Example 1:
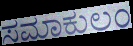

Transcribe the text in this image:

ಸಮಾಕುಲಂ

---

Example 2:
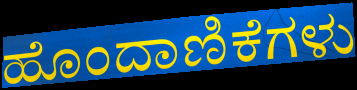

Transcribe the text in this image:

ಹೊಂದಾಣಿಕೆಗಳು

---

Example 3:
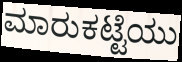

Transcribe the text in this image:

ಮಾರುಕಟ್ಟೆಯು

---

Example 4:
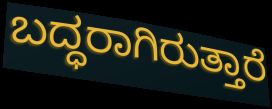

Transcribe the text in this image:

ಬದ್ಧರಾಗಿರುತ್ತಾರೆ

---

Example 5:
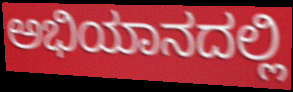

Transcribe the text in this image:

ಅಭಿಯಾನದಲ್ಲಿ